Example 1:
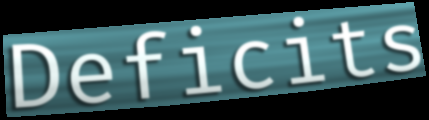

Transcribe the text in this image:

Deficits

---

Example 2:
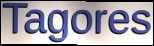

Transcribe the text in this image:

Tagores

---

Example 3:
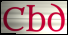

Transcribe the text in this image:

Cbd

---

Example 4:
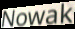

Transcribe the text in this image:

Nowak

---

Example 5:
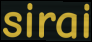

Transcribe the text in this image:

sirai